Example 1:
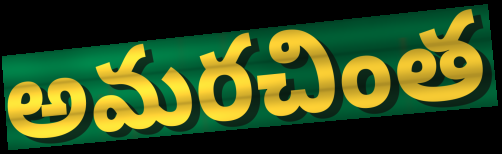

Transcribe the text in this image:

అమరచింత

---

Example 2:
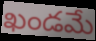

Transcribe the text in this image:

ఖండమే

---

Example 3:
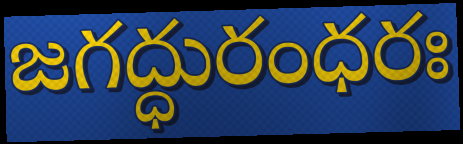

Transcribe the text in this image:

జగద్ధురంధరః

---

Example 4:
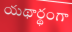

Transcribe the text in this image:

యథార్థంగా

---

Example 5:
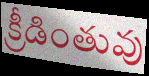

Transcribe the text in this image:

క్రీడింతువు